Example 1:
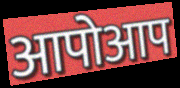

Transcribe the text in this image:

आपोआप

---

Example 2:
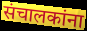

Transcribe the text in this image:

संचालकांना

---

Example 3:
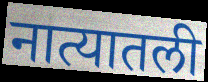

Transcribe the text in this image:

नात्यातली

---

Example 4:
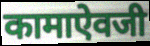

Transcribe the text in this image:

कामाऐवजी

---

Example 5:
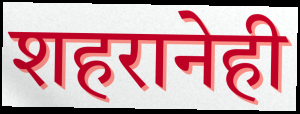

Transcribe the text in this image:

शहरानेही